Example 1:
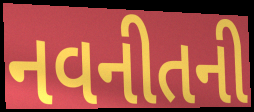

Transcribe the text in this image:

નવનીતની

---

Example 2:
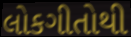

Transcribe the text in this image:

લોકગીતોથી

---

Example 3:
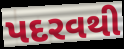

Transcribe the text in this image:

પદરવથી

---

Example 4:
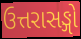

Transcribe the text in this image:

ઉત્તરાસઙ્ગો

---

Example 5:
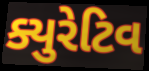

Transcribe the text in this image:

ક્યુરેટિવ